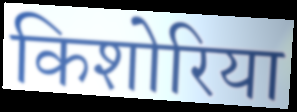
किशोरिया